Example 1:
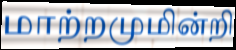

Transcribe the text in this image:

மாற்றமுமின்றி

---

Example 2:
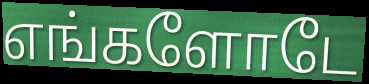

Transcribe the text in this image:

எங்களோடே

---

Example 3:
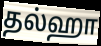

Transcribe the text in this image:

தல்ஹா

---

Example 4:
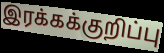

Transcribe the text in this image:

இரக்கக்குறிப்பு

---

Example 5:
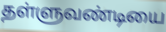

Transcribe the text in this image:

தள்ளுவண்டியை